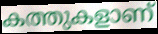
കത്തുകളാണ്